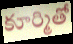
కూర్మితో